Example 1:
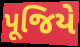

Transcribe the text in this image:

પૂજિયે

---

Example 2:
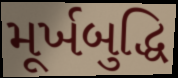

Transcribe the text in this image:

મૂર્ખબુદ્ધિ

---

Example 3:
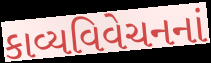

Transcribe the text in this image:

કાવ્યવિવેચનનાં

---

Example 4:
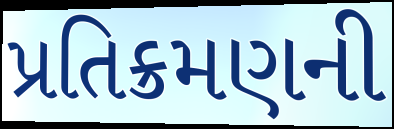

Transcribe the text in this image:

પ્રતિક્રમણની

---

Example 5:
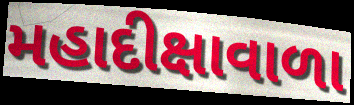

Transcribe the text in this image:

મહાદીક્ષાવાળા